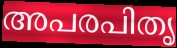
അപരപിതൃ